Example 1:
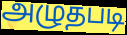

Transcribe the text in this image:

அழுதபடி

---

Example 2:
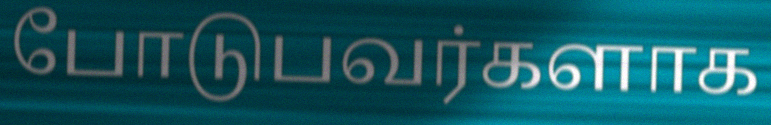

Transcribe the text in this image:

போடுபவர்களாக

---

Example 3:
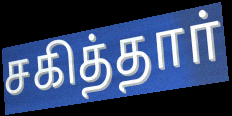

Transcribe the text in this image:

சகித்தார்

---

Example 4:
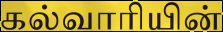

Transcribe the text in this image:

கல்வாரியின்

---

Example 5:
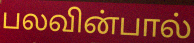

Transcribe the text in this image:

பலவின்பால்